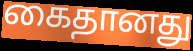
கைதானது